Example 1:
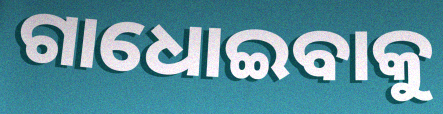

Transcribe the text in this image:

ଗାଧୋଇବାକୁ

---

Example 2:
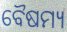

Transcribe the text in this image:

ବୈଷମ୍ୟ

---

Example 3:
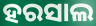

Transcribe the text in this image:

ହରସାଲ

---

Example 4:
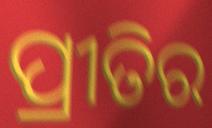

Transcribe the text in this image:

ପ୍ରୀତିର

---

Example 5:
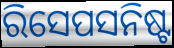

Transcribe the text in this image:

ରିସେପସନିଷ୍ଟ